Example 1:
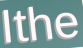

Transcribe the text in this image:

Ithe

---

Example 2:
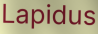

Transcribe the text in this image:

Lapidus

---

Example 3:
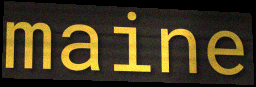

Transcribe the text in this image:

maine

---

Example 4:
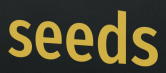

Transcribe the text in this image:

seeds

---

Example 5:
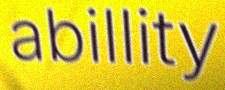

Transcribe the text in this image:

abillity